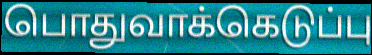
பொதுவாக்கெடுப்பு